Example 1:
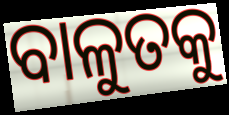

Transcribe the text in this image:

ବାଳୁତକୁ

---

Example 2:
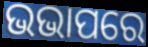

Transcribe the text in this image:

ଭଭାପରେ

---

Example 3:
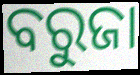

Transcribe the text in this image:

ବରୁଜା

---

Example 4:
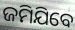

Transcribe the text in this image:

ଜମିଯିବେ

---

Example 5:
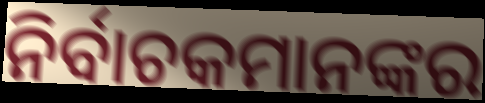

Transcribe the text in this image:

ନିର୍ବାଚକମାନଙ୍କର